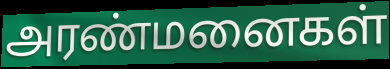
அரண்மனைகள்